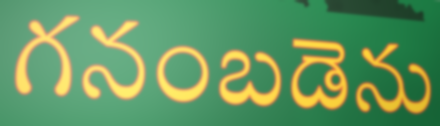
గనంబడెను